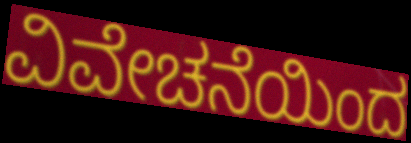
ವಿವೇಚನೆಯಿಂದ